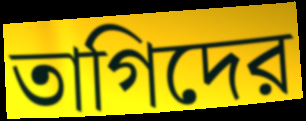
তাগিদের